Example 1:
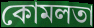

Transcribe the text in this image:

কোমলতা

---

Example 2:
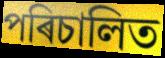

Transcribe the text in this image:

পৰিচালিত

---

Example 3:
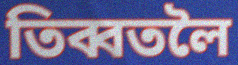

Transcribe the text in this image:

তিব্বতলৈ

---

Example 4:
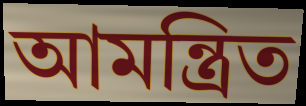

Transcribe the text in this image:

আমন্ত্ৰিত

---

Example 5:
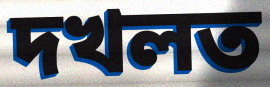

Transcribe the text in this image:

দখলত